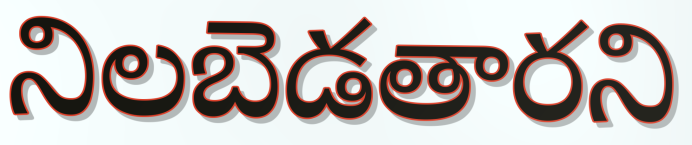
నిలబెడతారని